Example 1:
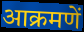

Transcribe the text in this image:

आक्रमणें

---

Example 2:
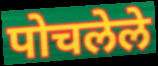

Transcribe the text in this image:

पोचलेले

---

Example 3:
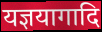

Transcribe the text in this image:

यज्ञयागादि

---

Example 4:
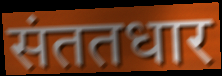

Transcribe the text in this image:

संततधार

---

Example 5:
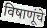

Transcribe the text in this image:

विषाणूंचे